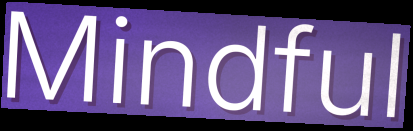
Mindful